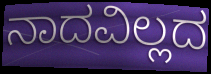
ನಾದವಿಲ್ಲದ